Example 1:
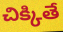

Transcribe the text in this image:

చిక్కితే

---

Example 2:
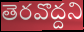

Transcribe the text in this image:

తెరవొద్దని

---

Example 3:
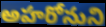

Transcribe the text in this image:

అహరోనుని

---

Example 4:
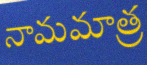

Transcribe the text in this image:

నామమాత్ర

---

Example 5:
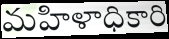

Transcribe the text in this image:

మహిళాధికారి